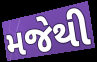
મજેથી